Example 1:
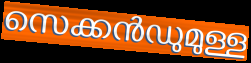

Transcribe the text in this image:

സെക്കൻഡുമുള്ള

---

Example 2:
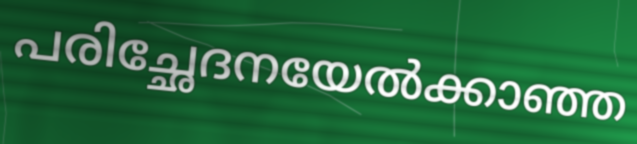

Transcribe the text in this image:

പരിച്ഛേദനയേൽക്കാഞ്ഞ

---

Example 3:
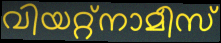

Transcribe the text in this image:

വിയറ്റ്നാമീസ്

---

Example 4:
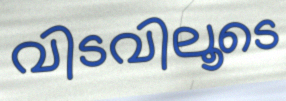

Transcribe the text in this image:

വിടവിലൂടെ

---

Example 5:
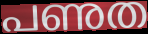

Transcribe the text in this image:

പണുത